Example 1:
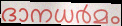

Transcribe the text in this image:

ദാനധർമം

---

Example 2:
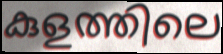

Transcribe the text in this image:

കുളത്തിലെ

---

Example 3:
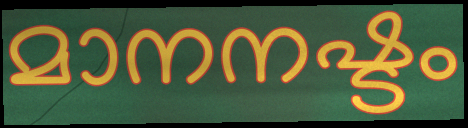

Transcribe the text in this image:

മാനനഷ്ടം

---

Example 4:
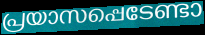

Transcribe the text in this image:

പ്രയാസപ്പെടേണ്ടാ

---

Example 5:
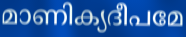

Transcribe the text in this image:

മാണിക്യദീപമേ